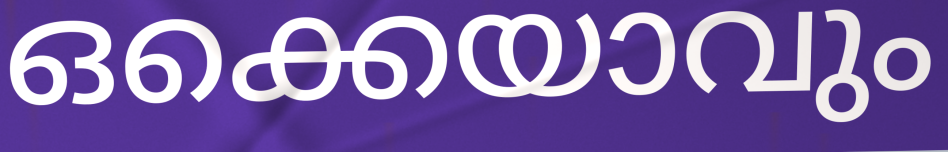
ഒക്കെയാവും